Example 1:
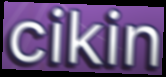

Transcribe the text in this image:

cikin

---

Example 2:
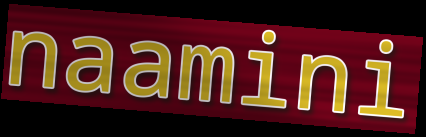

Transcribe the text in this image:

naamini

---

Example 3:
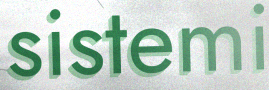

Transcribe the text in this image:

sistemi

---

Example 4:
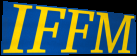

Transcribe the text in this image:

IFFM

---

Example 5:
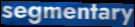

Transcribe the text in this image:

segmentary